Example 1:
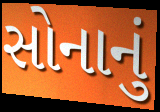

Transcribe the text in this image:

સોનાનું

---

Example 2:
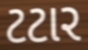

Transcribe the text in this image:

ટટાર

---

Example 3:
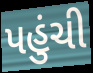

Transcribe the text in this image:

પહુંચી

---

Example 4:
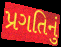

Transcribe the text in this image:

પ્રગતિનું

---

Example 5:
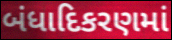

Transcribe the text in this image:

બંધાદિકરણમાં